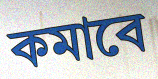
কমাবে